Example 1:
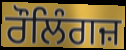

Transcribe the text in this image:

ਰੌਲਿੰਗਜ਼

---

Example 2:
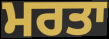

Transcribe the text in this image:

ਮਰਤਾ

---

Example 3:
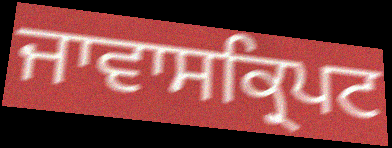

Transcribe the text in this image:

ਜਾਵਾਸਕ੍ਰਿਪਟ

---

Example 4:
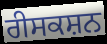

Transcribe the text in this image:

ਰੀਸਕਸ਼ਨ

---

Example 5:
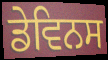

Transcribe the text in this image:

ਡੇਵਿਨਸ